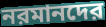
নরমানদের